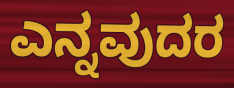
ಎನ್ನವುದರ